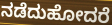
ನಡೆದುಹೋದರೆ